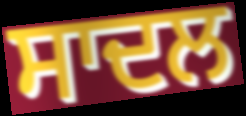
ਸਾਦਲ